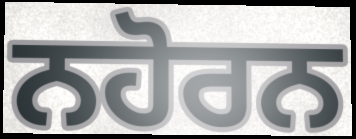
ਨਹੋਰਨ